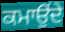
ਕਮਾਉਂਦੇ